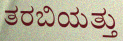
ತರಬಿಯತ್ತು